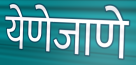
येणेजाणे